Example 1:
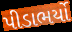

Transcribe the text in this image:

પીડાભર્યો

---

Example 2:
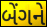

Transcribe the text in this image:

બેંગને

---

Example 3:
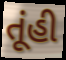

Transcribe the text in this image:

તૂંહી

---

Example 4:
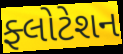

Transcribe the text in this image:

ફ્લોટેશન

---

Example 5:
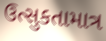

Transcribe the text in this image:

ઉત્સુકતામાત્ર